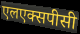
एलएक्सपीसी